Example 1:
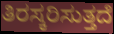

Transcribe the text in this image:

ತಿರಸ್ಕರಿಸುತ್ತದೆ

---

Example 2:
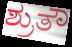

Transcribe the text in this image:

ಶ್ರುತೌ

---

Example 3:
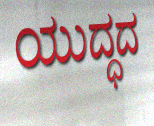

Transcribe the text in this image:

ಯುದ್ಧದ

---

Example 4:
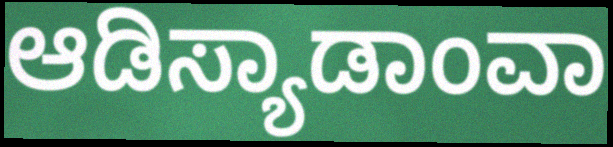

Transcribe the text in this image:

ಆಡಿಸ್ಯಾಡಾಂವಾ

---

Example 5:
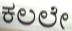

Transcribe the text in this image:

ಕಲಲೇ